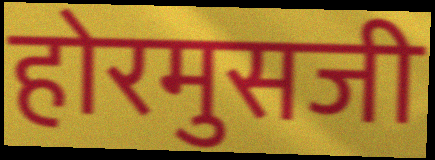
होरमुसजी